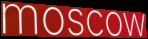
moscow